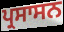
ਪ੍ਰਸਾਸਨ